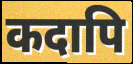
कदापि